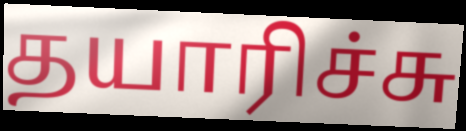
தயாரிச்சு